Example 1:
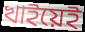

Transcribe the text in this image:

খাইয়েই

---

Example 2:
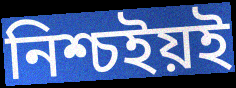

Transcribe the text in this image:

নিশ্চইয়ই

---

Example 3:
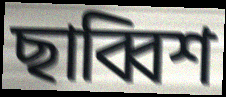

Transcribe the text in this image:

ছাব্বিশ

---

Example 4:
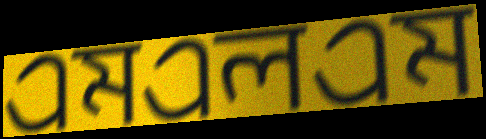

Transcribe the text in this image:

এমএলএম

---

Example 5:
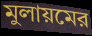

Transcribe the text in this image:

মুলায়মের